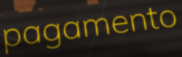
pagamento